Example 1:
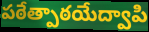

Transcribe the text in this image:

పఠేత్పాఠయేద్వాపి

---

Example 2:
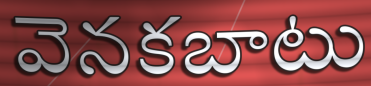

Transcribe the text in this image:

వెనకబాటు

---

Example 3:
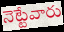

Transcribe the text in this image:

నెట్టేవారు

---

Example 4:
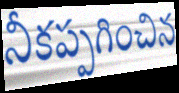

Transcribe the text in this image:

నీకప్పగించిన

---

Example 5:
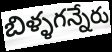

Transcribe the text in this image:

బిళ్ళగన్నేరు